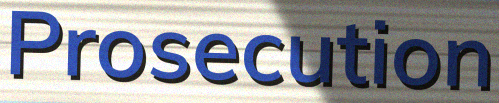
Prosecution